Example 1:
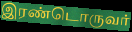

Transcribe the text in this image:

இரண்டொருவர்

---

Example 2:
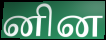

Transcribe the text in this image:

னின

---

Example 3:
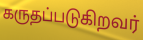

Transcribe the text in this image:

கருதப்படுகிறவர்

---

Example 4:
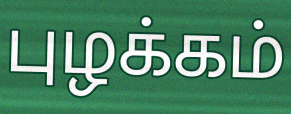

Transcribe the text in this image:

புழக்கம்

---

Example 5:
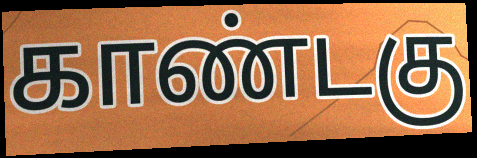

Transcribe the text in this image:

காண்டகு